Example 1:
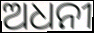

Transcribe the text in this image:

ଅଧନୀ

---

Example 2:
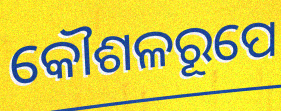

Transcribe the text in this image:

କୌଶଳରୂପେ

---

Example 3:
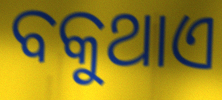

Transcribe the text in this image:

ବକୁଥାଏ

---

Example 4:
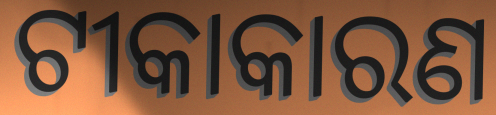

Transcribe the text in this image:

ଟୀକାକାରଣ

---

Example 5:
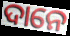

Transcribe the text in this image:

ଦାନେ